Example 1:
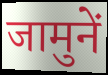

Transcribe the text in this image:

जामुनें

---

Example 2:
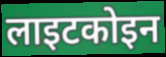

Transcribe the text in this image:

लाइटकोइन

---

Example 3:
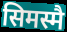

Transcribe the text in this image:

सिमस्मै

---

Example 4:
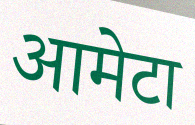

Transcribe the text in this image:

आमेटा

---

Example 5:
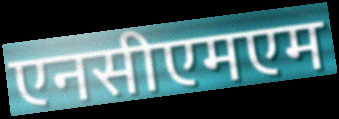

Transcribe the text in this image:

एनसीएमएम